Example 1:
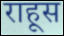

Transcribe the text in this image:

राहूस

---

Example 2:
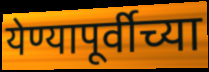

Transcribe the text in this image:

येण्यापूर्वीच्या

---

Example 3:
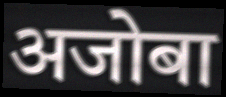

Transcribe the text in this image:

अजोबा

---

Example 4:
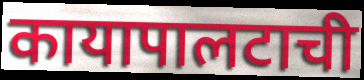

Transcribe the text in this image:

कायापालटाची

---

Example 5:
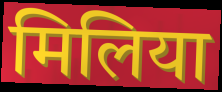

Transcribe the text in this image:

मिलिया